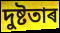
দুষ্টতাৰ